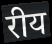
रीय